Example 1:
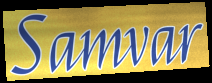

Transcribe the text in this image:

Samvar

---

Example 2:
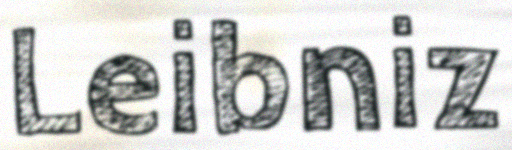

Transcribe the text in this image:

Leibniz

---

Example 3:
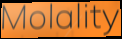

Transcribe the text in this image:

Molality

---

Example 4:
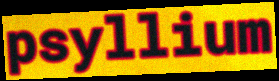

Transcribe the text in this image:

psyllium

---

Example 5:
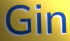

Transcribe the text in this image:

Gin